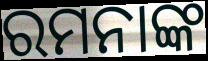
ରମନାଙ୍କ